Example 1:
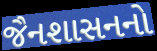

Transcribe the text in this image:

જૈનશાસનનો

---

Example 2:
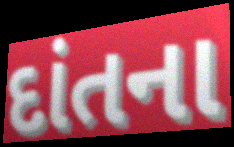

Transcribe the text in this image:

દાંતના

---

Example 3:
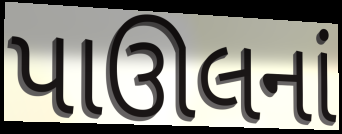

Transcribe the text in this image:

પાઊલનાં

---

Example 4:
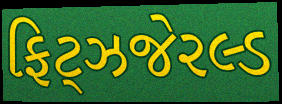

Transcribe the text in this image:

ફિટ્ઝજેરલ્ડ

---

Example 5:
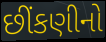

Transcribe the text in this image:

છીંકણીનો